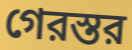
গেরস্তর